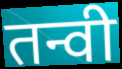
तन्वी